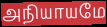
அநியாயமே